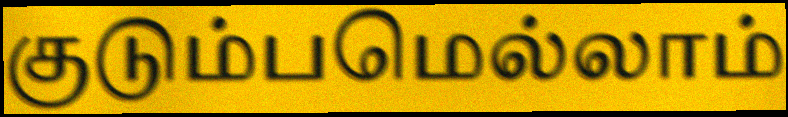
குடும்பமெல்லாம்